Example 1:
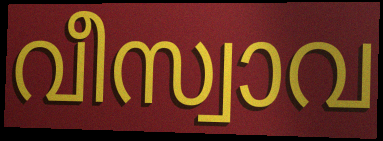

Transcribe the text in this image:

വീസ്വാവ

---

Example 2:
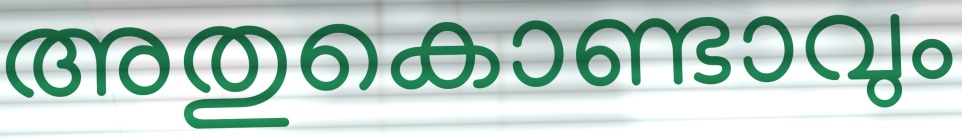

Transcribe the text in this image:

അതുകൊണ്ടാവും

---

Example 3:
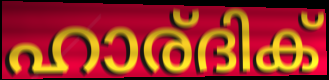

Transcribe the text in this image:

ഹാര്ദിക്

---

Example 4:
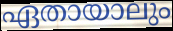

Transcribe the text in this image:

ഏതായാലും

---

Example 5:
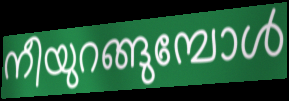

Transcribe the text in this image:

നീയുറങ്ങുമ്പോൾ